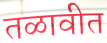
तळावीत